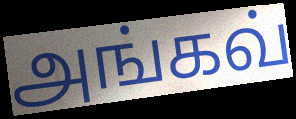
அங்கவ்